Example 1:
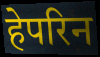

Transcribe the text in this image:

हेपरिन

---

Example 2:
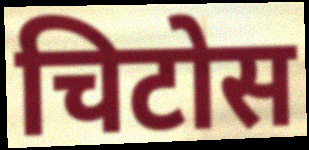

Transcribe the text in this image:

चिटोस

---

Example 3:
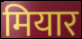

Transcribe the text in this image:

मियार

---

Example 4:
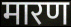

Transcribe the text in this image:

मारण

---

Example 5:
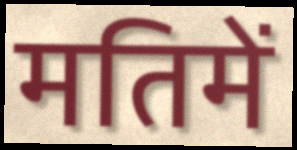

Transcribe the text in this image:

मतिमें